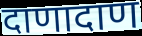
दाणादाण